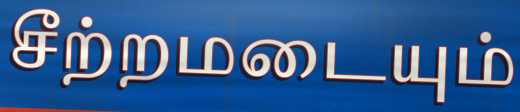
சீற்றமடையும்